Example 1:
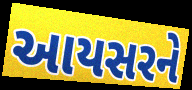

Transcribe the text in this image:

આયસરને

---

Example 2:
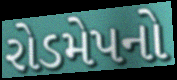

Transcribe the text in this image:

રોડમેપનો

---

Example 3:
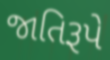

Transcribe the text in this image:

જાતિરૂપે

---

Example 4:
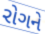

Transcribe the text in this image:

રોગને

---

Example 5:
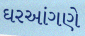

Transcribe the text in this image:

ઘરઆંગણે